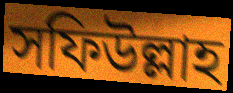
সফিউল্লাহ